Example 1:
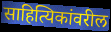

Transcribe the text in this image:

साहित्यिकांवरील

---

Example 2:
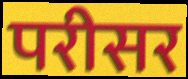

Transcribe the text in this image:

परीसर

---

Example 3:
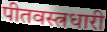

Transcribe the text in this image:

पीतवस्त्रधारी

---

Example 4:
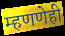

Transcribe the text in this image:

म्हणणेही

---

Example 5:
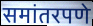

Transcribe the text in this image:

समांतरपणे